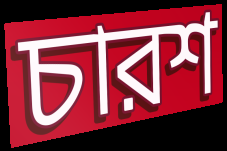
চারশ